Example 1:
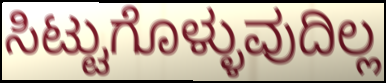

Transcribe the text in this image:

ಸಿಟ್ಟುಗೊಳ್ಳುವುದಿಲ್ಲ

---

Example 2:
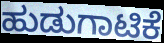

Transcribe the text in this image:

ಹುಡುಗಾಟಿಕೆ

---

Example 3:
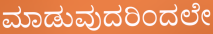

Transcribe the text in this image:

ಮಾಡುವುದರಿಂದಲೇ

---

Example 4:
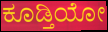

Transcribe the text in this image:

ಕೂಡ್ತಿಯೋ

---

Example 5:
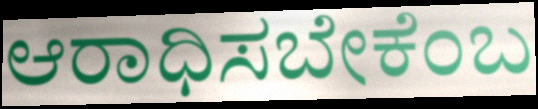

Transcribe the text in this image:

ಆರಾಧಿಸಬೇಕೆಂಬ